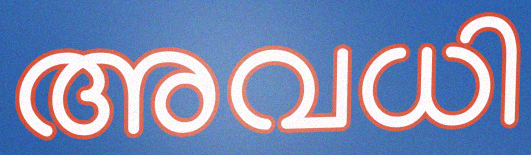
അവധി